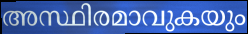
അസ്ഥിരമാവുകയും